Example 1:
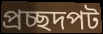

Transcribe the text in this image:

প্রচ্ছদপট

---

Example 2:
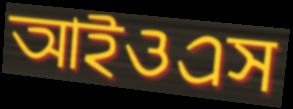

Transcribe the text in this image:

আইওএস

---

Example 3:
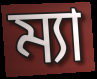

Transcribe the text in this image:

ম্যা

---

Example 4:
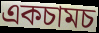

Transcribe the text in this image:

একচামচ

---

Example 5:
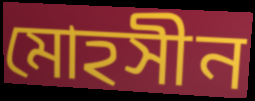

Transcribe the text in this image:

মোহসীন